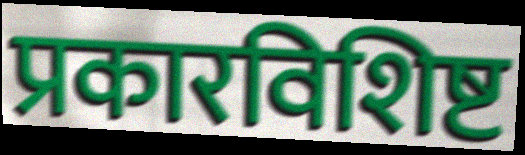
प्रकारविशिष्ट